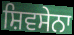
ਸ਼ਿਵਸੇਨਾ